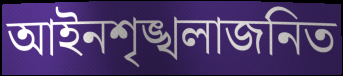
আইনশৃঙ্খলাজনিত